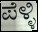
ಪೆಳ್ಳಿ